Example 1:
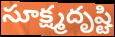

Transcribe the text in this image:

సూక్ష్మదృష్టి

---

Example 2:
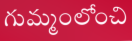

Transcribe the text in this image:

గుమ్మంలోంచి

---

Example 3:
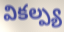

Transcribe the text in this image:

వికల్ప్య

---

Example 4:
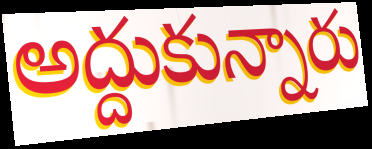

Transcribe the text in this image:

అద్దుకున్నారు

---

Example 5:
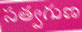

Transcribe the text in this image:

సత్వగుణ